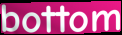
bottom